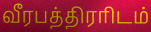
வீரபத்திரரிடம்